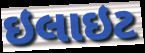
ઇલાઇટ